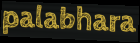
palabhara